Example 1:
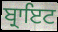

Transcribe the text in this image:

ਬ੍ਰਾਇਟ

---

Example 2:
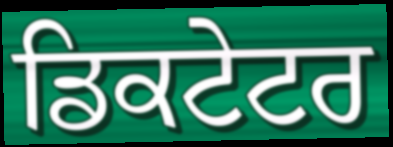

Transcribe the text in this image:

ਡਿਕਟੇਟਰ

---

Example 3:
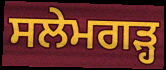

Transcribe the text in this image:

ਸਲੇਮਗੜ੍ਹ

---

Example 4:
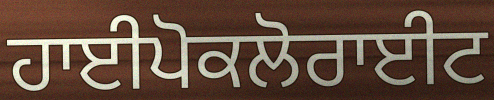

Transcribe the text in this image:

ਹਾਈਪੋਕਲੋਰਾਈਟ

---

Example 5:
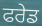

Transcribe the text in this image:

ਫਰੇਡ